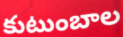
కుటుంబాల